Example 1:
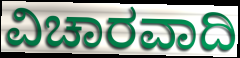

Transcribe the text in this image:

ವಿಚಾರವಾದಿ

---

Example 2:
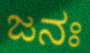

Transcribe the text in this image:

ಜನಃ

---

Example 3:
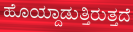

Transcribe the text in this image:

ಹೊಯ್ದಾಡುತ್ತಿರುತ್ತದೆ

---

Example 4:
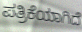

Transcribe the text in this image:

ಪತ್ರಿಕೆಯಾಗಿದೆ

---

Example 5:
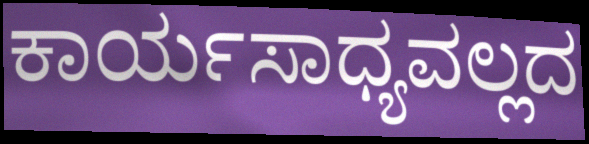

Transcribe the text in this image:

ಕಾರ್ಯಸಾಧ್ಯವಲ್ಲದ